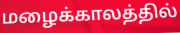
மழைக்காலத்தில்